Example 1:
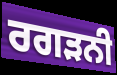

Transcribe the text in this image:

ਰਗੜਨੀ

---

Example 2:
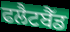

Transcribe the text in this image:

ਫਲੈਟਬੈੱਡ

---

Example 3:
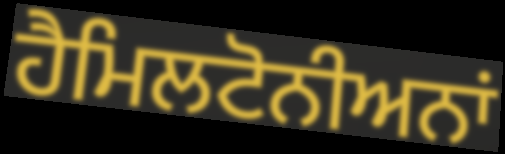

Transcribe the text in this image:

ਹੈਮਿਲਟੋਨੀਅਨਾਂ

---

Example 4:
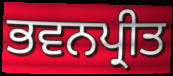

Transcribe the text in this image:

ਭਵਨਪ੍ਰੀਤ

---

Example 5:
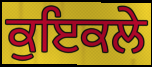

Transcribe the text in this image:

ਕੁਇਕਲੇ